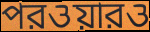
পরওয়ারও